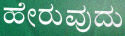
ಹೇರುವುದು